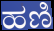
ಹಣಿ